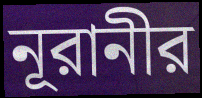
নূরানীর